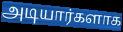
அடியார்களாக